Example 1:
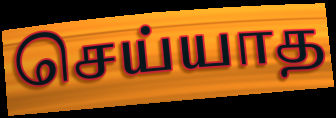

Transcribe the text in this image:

செய்யாத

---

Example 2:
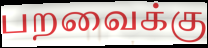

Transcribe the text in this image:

பறவைக்கு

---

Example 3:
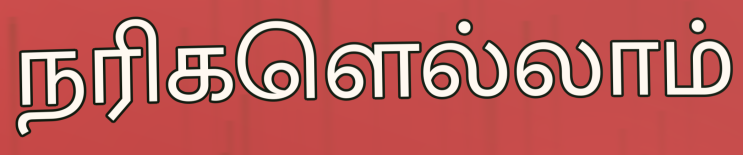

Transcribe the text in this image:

நரிகளெல்லாம்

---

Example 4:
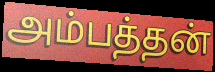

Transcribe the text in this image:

அம்பத்தன்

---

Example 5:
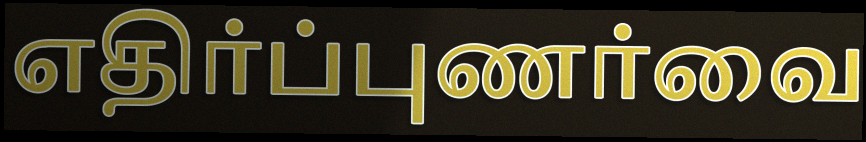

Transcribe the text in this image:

எதிர்ப்புணர்வை